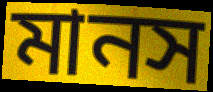
মানস